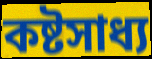
কষ্টসাধ্য